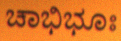
ಚಾಭಿಭೂಃ